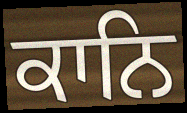
ਕਾਨਿ